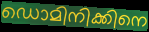
ഡൊമിനിക്കിനെ